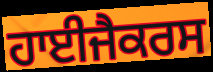
ਹਾਈਜੈਕਰਸ